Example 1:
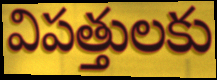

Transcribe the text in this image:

విపత్తులకు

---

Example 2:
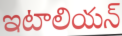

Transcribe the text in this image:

ఇటాలియన్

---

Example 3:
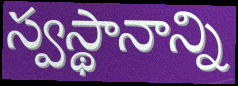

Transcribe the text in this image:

స్వస్థానాన్ని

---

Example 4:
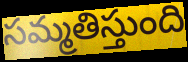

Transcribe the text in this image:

సమ్మతిస్తుంది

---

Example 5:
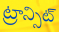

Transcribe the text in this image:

ట్రాన్సిట్